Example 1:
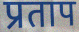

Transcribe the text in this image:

प्रताप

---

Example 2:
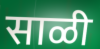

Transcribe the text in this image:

साळी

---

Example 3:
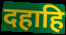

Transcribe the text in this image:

दहाहि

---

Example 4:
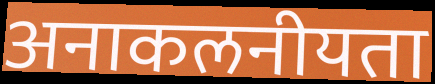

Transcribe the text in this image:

अनाकलनीयता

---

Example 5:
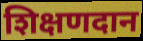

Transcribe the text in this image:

शिक्षणदान